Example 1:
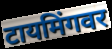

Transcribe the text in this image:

टायमिंगवर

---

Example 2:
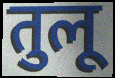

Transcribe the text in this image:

तुलू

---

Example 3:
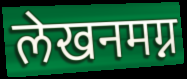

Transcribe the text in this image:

लेखनमग्न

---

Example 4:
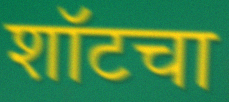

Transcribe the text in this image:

शॉटचा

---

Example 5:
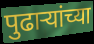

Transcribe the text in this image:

पुढार्‍यांच्या